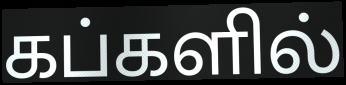
கப்களில்